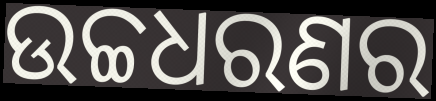
ଉଚ୍ଚଧରଣର